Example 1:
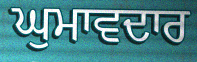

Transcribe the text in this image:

ਘੁਮਾਵਦਾਰ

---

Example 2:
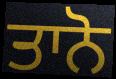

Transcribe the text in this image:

ਤਾਨੋ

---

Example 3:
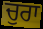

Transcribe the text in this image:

ਚੁਰਾ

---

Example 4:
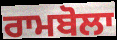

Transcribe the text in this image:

ਰਾਮਬੋਲਾ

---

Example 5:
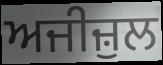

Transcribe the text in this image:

ਅਜੀਜ਼ੁਲ